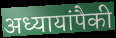
अध्यायांपैकी